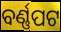
ବର୍ଣ୍ଣପଟ